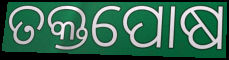
ତକ୍ତପୋଷ